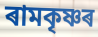
ৰামকৃষ্ণৰ